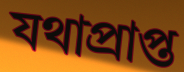
যথাপ্ৰাপ্ত